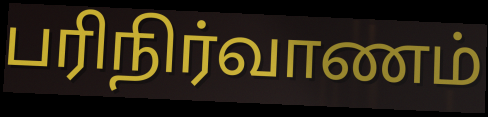
பரிநிர்வாணம்